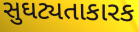
સુઘટ્યતાકારક